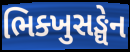
ભિક્ખુસઙ્ઘેન